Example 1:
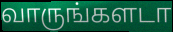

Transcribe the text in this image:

வாருங்களடா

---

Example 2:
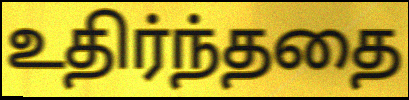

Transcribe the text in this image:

உதிர்ந்ததை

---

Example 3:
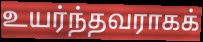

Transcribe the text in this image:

உயர்ந்தவராகக்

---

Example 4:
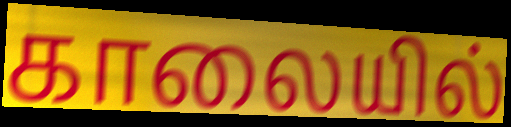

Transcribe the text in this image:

காலையில்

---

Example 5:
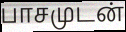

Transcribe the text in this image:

பாசமுடன்